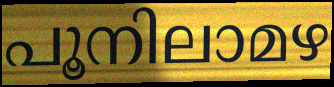
പൂനിലാമഴ